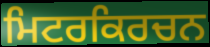
ਮਿਟਰਕਿਰਚਨ